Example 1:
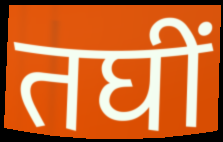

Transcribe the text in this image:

तघीं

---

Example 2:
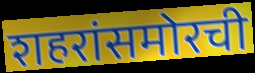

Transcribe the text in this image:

शहरांसमोरची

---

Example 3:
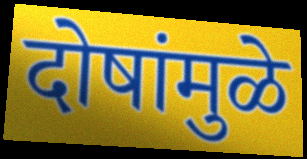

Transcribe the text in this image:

दोषांमुळे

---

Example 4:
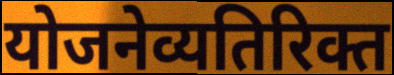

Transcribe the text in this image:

योजनेव्यतिरिक्त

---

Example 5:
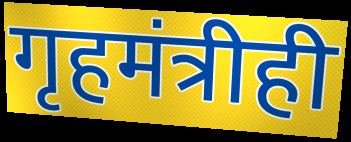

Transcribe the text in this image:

गृहमंत्रीही